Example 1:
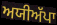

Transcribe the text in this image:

ਅਯੀਅੱਪਾ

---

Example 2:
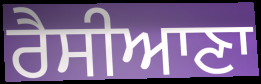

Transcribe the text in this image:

ਰੈਸੀਆਣਾ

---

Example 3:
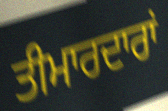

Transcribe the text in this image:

ਤੀਮਾਰਦਾਰਾਂ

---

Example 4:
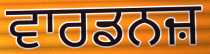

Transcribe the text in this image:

ਵਾਰਡਨਜ਼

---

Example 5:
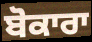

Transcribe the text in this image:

ਬੋਕਾਰਾ